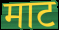
माट